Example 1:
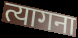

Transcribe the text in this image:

त्यागना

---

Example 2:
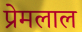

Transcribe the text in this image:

प्रेमलाल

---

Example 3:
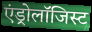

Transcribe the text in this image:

एंड्रोलॉजिस्ट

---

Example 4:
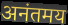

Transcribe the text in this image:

अनंतमय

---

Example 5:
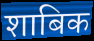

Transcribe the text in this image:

शाबिक